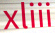
xliii